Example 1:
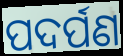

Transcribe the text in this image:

ପଦର୍ପଣ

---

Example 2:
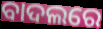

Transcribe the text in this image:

ବାଦଲରେ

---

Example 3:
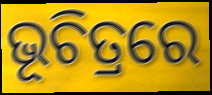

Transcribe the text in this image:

ଭୂଚିତ୍ରରେ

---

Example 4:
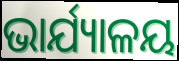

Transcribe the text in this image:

ଭାର୍ଯ୍ୟାଳୟ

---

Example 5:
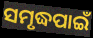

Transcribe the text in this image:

ସମୃଦ୍ଧପାଇଁ